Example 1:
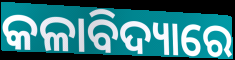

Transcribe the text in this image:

କଳାବିଦ୍ୟାରେ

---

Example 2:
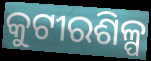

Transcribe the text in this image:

କୁଟୀରଶିଳ୍ପ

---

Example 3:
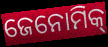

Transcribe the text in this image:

ଜେନୋମିକ୍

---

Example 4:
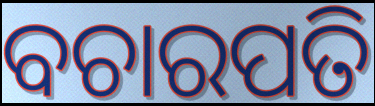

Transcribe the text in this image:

ବଚାରପତି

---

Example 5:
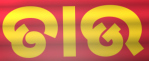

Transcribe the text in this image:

ତାଉ